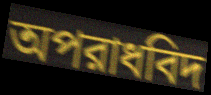
অপরাধবিদ